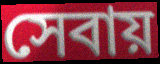
সেবায়